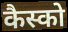
कैस्को